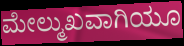
ಮೇಲ್ಮುಖವಾಗಿಯೂ